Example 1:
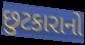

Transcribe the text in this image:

છુટકારાનો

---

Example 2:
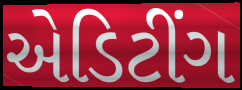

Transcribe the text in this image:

એડિટીંગ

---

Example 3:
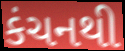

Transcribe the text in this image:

કંચનથી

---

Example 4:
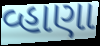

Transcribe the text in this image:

વ્હાણા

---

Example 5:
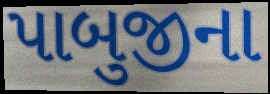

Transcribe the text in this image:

પાબુજીના